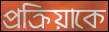
প্রক্রিয়াকে